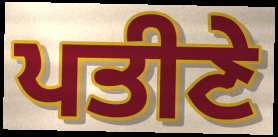
ਪਤੀਣੇ